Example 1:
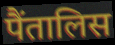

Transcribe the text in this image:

पैंतालिस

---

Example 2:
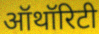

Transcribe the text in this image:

ऑथॉरिटी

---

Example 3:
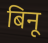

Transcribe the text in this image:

बिनू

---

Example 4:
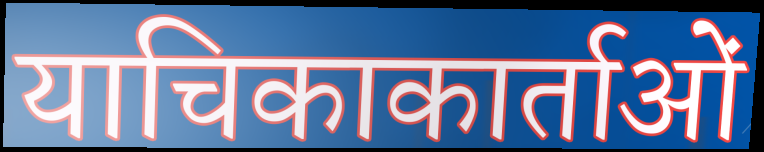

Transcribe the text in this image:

याचिकाकार्ताओं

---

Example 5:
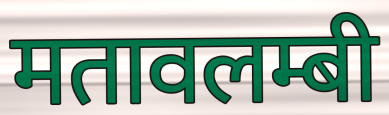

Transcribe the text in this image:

मतावलम्बी